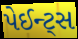
પેઈન્ટ્સ